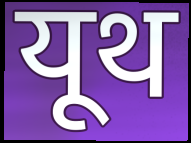
यूथ